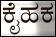
ಕೈಹಕ